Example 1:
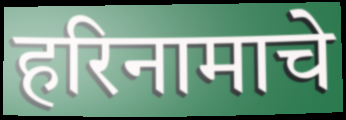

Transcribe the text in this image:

हरिनामाचे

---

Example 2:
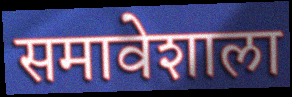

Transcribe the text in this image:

समावेशाला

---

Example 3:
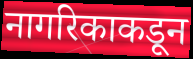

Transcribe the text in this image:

नागरिकाकडून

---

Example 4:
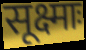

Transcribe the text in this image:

सूक्ष्माः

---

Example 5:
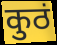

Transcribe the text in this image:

कुठं